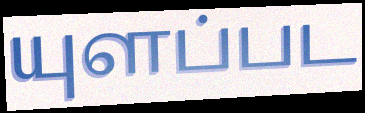
யுளப்பட